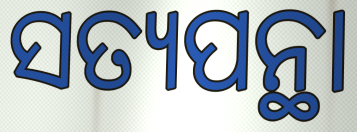
ସତ୍ୟପନ୍ଥା